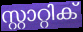
സ്റ്റാറ്റിക്